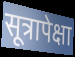
सूत्रापेक्षा